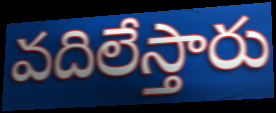
వదిలేస్తారు